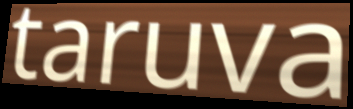
taruva